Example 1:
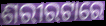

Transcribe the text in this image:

ଶରୀରଟାରେ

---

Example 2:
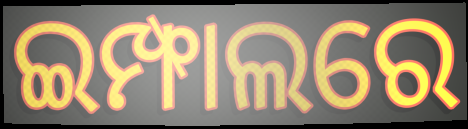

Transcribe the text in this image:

ଇମ୍ଫାଲରେ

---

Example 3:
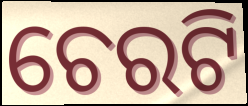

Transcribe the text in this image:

ଚେରଟି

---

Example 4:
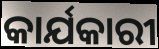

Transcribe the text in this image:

କାର୍ଯକାରୀ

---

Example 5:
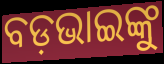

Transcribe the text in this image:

ବଡ଼ଭାଇଙ୍କୁ